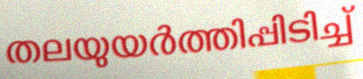
തലയുയർത്തിപ്പിടിച്ച്